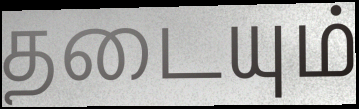
தடையும்